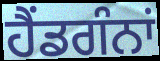
ਹੈਂਡਗੰਨਾਂ